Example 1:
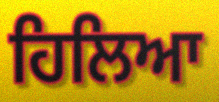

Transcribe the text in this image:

ਹਿਲਿਆ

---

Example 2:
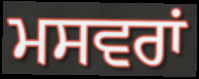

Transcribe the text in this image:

ਮਸਵਰਾਂ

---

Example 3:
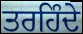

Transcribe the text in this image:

ਤਰਹਿੰਦੇ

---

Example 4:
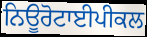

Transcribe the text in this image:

ਨਿਊਰੋਟਾਈਪੀਕਲ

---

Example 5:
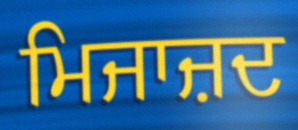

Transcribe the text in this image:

ਮਿਜਾਜ਼ਦ